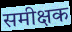
समीक्षक